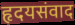
हृदयसंवाद